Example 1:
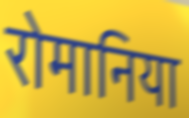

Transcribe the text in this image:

रोमानिया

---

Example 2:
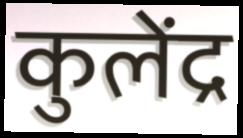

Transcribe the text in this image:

कुलेंद्र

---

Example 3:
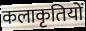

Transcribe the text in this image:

कलाकृतियों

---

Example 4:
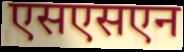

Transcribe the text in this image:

एसएसएन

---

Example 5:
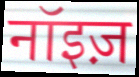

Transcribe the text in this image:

नॉइज़